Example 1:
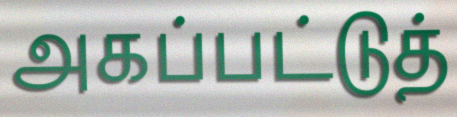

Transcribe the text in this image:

அகப்பட்டுத்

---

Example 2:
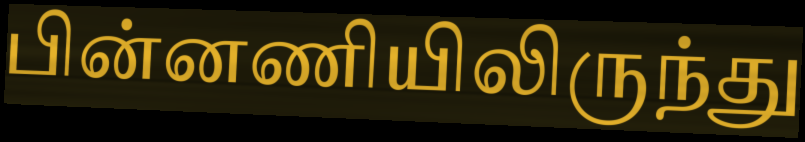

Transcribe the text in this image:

பின்னணியிலிருந்து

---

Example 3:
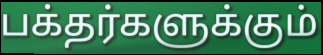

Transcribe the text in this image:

பக்தர்களுக்கும்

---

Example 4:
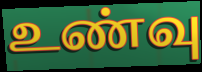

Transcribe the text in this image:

உண்வு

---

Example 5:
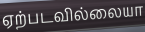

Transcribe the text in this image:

ஏற்படவில்லையா